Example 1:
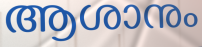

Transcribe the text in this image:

ആശാനും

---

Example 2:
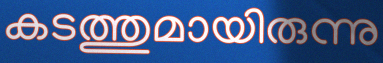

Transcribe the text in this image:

കടത്തുമായിരുന്നു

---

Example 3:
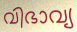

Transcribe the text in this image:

വിഭാവ്യ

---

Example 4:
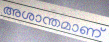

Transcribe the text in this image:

അശാന്തമാണ്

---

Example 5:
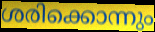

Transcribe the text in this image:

ശരിക്കൊന്നും